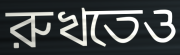
রুখতেও